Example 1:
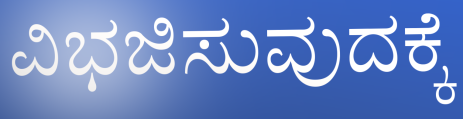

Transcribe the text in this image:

ವಿಭಜಿಸುವುದಕ್ಕೆ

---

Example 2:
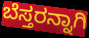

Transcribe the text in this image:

ಬೆಸ್ತರನ್ನಾಗಿ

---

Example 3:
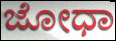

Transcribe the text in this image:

ಜೋಧಾ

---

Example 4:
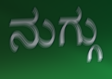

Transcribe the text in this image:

ನುಗ್ಗು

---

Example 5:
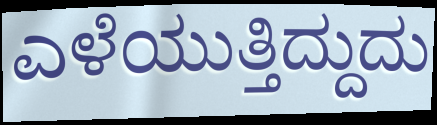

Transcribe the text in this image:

ಎಳೆಯುತ್ತಿದ್ದುದು